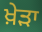
ਖ਼ੇੜਾ